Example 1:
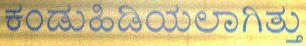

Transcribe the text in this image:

ಕಂಡುಹಿಡಿಯಲಾಗಿತ್ತು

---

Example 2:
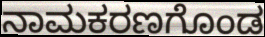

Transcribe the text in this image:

ನಾಮಕರಣಗೊಂಡ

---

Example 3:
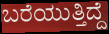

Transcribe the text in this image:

ಬರೆಯುತ್ತಿದ್ದೆ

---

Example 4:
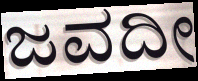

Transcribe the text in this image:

ಜವದೀ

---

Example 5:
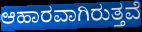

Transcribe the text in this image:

ಆಹಾರವಾಗಿರುತ್ತವೆ